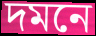
দমনে